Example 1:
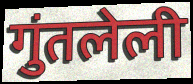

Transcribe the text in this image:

गुंतलेली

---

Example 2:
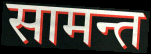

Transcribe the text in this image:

सामन्त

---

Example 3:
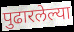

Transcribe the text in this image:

पुढारलेल्या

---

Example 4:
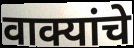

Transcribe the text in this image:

वाक्यांचे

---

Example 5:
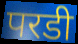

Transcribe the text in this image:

परडी